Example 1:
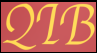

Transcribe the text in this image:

QIB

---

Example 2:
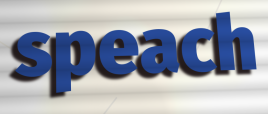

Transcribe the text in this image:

speach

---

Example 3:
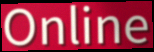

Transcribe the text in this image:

Online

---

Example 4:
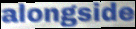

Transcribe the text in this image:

alongside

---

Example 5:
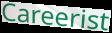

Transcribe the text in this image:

Careerist